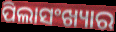
ପିଲାସଂଖ୍ୟାର